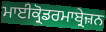
ਮਾਈਕ੍ਰੋਡਰਮਾਬ੍ਰੇਜ਼ਨ